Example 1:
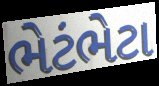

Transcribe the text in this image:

ભેટંભેટા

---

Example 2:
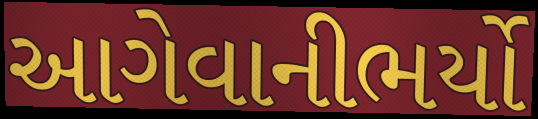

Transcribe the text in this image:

આગેવાનીભર્યો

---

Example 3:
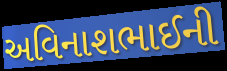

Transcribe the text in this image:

અવિનાશભાઈની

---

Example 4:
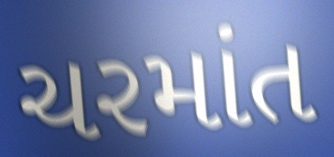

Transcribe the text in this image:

ચરમાંત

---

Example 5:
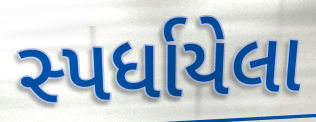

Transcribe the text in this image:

સ્પર્ધાયેલા